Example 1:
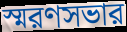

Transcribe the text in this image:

স্মরণসভার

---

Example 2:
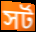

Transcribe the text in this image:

সর্ট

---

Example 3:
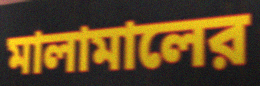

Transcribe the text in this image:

মালামালের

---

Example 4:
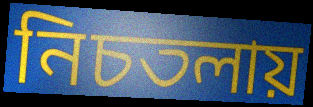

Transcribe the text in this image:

নিচতলায়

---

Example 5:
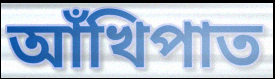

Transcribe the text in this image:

আঁখিপাত